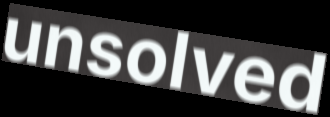
unsolved